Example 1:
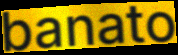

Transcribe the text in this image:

banato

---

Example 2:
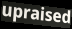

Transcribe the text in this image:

upraised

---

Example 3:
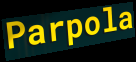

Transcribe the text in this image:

Parpola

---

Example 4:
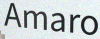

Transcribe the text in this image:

Amaro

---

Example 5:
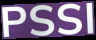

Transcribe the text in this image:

PSSI